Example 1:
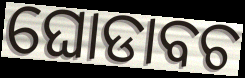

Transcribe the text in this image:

ଘୋଡାବଚ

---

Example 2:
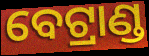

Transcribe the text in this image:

ବେଟ୍ରାଣ୍ଡ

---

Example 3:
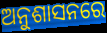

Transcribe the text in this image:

ଅନୁଶାସନରେ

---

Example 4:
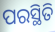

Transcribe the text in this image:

ପରସ୍ଥିତି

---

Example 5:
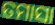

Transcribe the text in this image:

ତମାସା